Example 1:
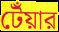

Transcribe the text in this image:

টেঁয়ার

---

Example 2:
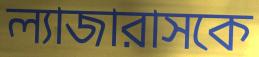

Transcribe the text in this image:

ল্যাজারাসকে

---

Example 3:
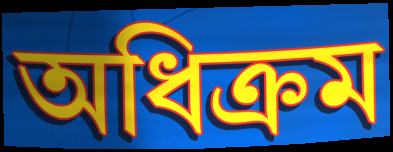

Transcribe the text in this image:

অধিক্রম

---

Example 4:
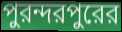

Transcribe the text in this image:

পুরন্দরপুরের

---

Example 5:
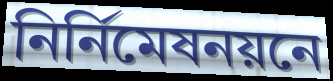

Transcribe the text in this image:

নির্নিমেষনয়নে